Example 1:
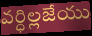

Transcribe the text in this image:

వర్ధిల్లజేయు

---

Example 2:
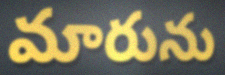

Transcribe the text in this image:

మారును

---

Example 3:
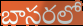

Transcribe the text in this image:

బాసరలో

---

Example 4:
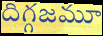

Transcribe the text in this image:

దిగ్గజమూ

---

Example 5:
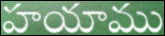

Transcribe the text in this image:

హయాము